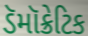
ડૅમૉક્રેટિક